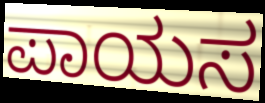
ಪಾಯಸ